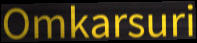
Omkarsuri